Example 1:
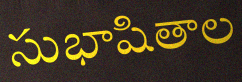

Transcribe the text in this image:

సుభాషితాల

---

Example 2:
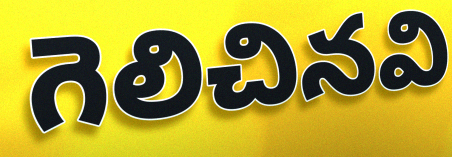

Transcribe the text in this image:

గెలిచినవి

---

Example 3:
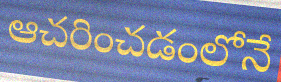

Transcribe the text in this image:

ఆచరించడంలోనే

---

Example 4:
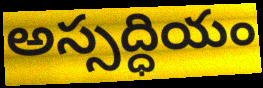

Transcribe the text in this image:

అస్సద్ధియం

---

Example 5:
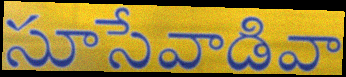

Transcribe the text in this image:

సూసేవాడివా